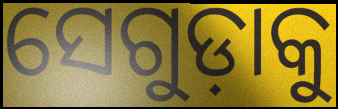
ସେଗୁଡ଼ାକୁ